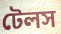
টেলস